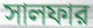
সালফার